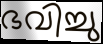
ഭവിച്ചു